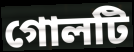
গোলটি